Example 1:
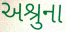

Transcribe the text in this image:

અશ્રુના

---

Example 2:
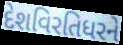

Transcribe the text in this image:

દેશવિરતિધરને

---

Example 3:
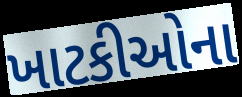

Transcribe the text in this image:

ખાટકીઓના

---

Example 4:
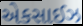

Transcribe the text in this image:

એકસાઈઝ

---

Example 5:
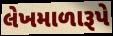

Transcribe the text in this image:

લેખમાળારૂપે